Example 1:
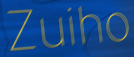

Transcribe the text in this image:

Zuiho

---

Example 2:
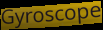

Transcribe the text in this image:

Gyroscope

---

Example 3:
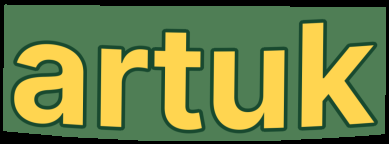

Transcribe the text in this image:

artuk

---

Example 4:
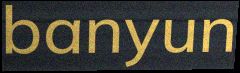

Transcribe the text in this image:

banyun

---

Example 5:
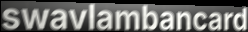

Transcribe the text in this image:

swavlambancard